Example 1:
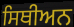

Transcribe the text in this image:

ਸਿਥੀਅਨ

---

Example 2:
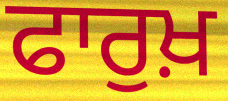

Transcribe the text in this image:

ਫਾਰੁਖ਼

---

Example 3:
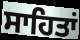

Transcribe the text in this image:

ਸਾਹਿਤਾਂ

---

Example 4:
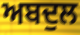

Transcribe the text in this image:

ਅਬਦੁਲ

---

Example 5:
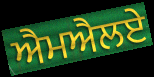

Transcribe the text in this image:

ਐਮਐਲਏ